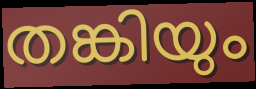
തങ്കിയും